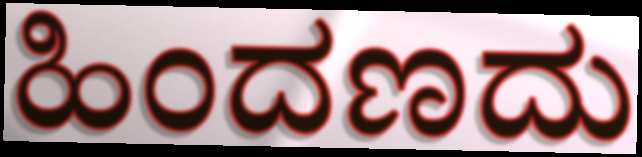
ಹಿಂದಣದು